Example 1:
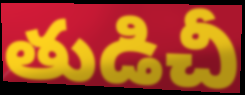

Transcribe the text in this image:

తుడిచీ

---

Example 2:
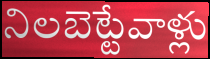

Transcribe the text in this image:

నిలబెట్టేవాళ్లు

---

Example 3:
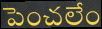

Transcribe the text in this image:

పెంచలేం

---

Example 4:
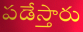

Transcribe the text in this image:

పడేస్తారు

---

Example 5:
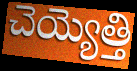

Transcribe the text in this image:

చెయ్యెత్తి